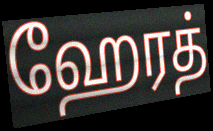
ஹேரத்